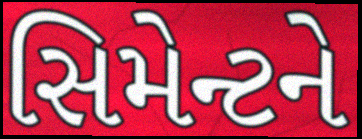
સિમેન્ટને